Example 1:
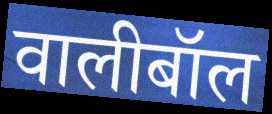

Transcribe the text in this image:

वालीबॉल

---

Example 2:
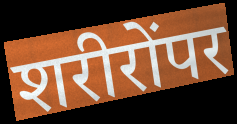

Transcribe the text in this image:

शरीरोंपर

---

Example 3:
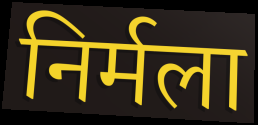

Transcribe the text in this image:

निर्मला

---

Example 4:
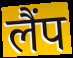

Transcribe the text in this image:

लैंप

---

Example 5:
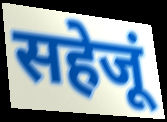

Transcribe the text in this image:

सहेजूं